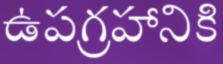
ఉపగ్రహానికి